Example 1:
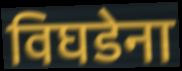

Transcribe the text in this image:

विघडेना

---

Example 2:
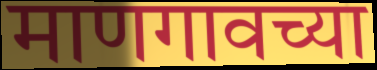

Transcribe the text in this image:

माणगावच्या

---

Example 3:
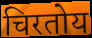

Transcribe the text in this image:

चिरतोय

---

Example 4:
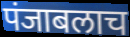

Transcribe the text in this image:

पंजाबलाच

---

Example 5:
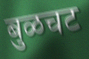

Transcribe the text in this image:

बुळचट